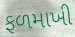
ફળમાખી